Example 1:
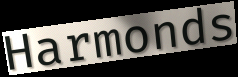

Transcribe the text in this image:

Harmonds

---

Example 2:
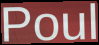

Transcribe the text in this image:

Poul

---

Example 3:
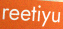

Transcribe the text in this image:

reetiyu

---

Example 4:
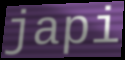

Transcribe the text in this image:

japi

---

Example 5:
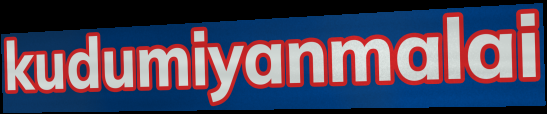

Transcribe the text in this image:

kudumiyanmalai